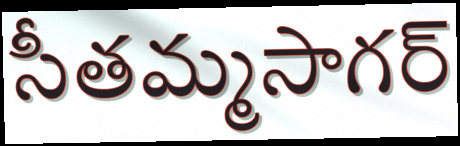
సీతమ్మసాగర్